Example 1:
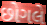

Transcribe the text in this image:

છોગલે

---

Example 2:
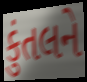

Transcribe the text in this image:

કુંતલને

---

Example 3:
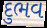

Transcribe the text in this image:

દુભવ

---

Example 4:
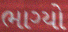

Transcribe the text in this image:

ભાગ્યો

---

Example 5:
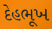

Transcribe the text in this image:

દેહભૂખ